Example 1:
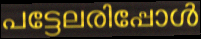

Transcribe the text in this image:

പട്ടേലരിപ്പോൾ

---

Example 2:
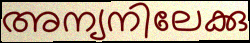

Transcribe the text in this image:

അന്യനിലേക്കു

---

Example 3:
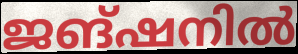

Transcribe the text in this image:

ജങ്ഷനിൽ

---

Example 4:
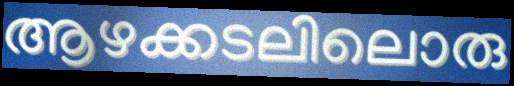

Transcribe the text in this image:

ആഴക്കടലിലൊരു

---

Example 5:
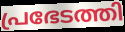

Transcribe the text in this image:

പ്രഭേടത്തി